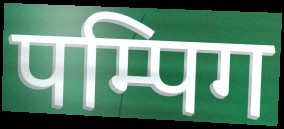
पम्पिग